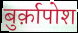
बुर्क़ापोश